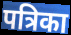
पत्रिका